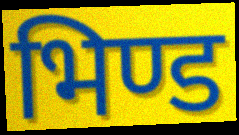
भिण्ड